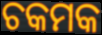
ଚକମକ